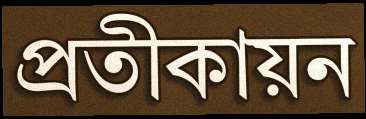
প্রতীকায়ন